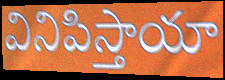
వినిపిస్తాయా